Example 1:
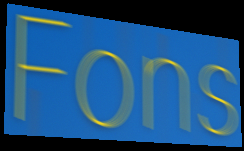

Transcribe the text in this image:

Fons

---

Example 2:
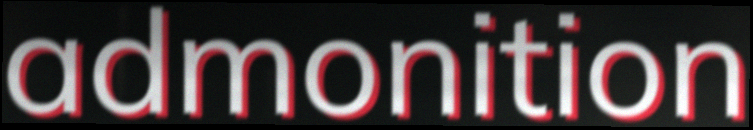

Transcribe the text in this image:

admonition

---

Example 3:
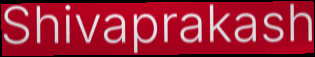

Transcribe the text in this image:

Shivaprakash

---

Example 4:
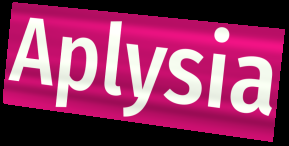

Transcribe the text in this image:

Aplysia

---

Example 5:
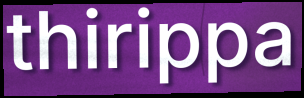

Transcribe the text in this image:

thirippa